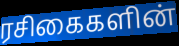
ரசிகைகளின்